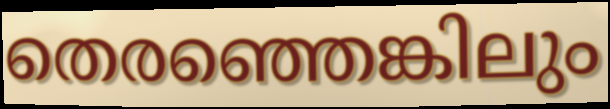
തെരഞ്ഞെങ്കിലും